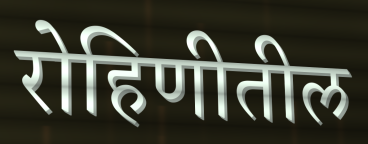
रोहिणीतील